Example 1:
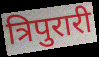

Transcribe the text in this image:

त्रिपुरारी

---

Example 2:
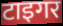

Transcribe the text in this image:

टाइगर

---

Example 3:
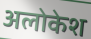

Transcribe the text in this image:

अलोकेश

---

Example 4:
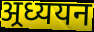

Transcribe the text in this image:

अ्रध्ययन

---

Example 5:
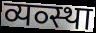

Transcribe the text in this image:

व्यव्स्था